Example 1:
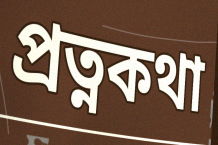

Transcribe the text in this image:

প্রত্নকথা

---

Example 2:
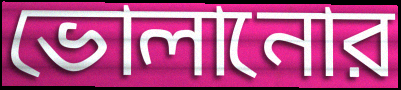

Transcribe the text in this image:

ভোলানোর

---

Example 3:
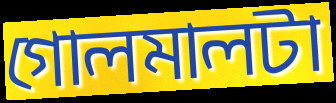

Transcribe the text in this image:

গোলমালটা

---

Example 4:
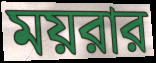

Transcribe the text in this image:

ময়রার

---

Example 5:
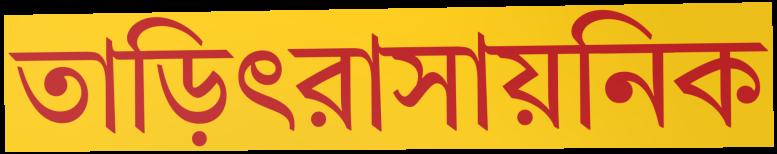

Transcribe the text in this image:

তাড়িৎরাসায়নিক